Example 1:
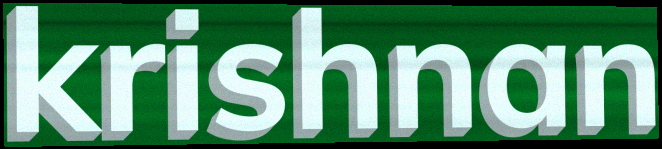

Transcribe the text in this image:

krishnan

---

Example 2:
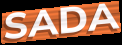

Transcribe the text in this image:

SADA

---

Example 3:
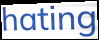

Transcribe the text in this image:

hating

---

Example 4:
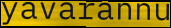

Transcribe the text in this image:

yavarannu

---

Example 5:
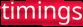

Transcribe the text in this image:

timings